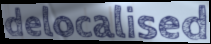
delocalised